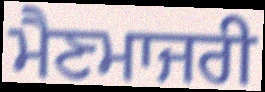
ਮੈਣਮਾਜਰੀ